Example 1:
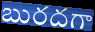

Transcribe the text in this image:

బురదగా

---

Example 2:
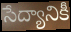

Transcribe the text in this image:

సేద్యానికీ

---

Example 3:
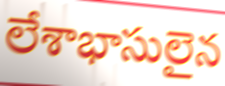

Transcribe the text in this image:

లేశాభాసులైన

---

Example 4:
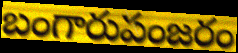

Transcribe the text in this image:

బంగారుపంజరం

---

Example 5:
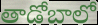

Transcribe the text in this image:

తాడోబాలో